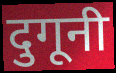
दुगूनी